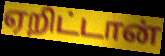
ஏறிட்டான்